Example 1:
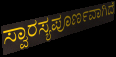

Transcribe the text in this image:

ಸ್ವಾರಸ್ಯಪೂರ್ಣವಾಗಿದೆ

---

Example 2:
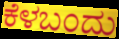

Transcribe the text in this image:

ಕೆಳಬಂದು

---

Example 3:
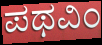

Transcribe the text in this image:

ಪಥವಿಂ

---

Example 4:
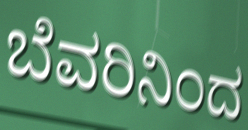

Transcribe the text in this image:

ಬೆವರಿನಿಂದ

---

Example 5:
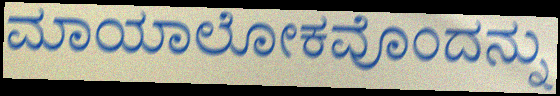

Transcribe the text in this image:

ಮಾಯಾಲೋಕವೊಂದನ್ನು